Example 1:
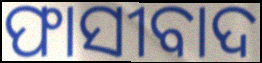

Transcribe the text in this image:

ଫାସୀବାଦ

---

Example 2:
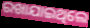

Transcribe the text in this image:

ରଖାଯାଇଥିଲେ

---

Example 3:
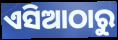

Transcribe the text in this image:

ଏସିଆଠାରୁ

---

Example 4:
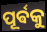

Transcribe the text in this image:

ପୂର୍ଵକୁ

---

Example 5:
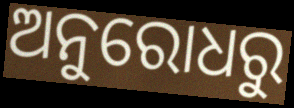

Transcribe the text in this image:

ଅନୁରୋଧରୁ